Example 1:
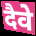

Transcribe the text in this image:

दैवे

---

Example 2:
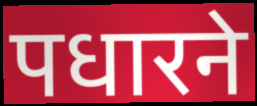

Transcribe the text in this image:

पधारने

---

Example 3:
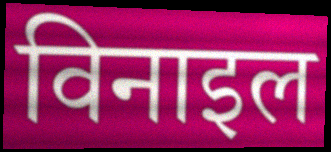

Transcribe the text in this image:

विनाइल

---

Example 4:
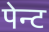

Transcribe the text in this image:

पेन्ट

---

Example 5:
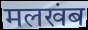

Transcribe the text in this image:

मलखंब